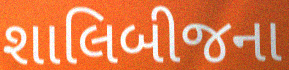
શાલિબીજના